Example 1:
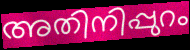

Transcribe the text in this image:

അതിനിപ്പുറം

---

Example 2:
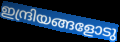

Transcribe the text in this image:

ഇന്ദ്രിയങ്ങളോടു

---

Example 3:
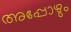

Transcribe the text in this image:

അപ്പോഴും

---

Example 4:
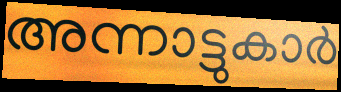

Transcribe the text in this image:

അന്നാട്ടുകാർ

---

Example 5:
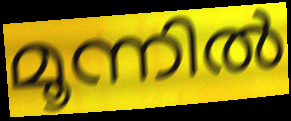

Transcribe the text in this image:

മൂന്നിൽ